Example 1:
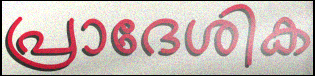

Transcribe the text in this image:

പ്രാദേശിക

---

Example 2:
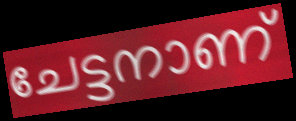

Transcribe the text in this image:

ചേട്ടനാണ്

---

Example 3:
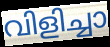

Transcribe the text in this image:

വിളിച്ചാ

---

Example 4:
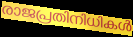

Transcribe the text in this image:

രാജപ്രതിനിധികൾ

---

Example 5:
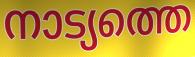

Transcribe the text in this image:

നാട്യത്തെ